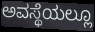
ಅವಸ್ಥೆಯಲ್ಲೂ